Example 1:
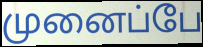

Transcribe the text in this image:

முனைப்பே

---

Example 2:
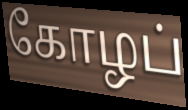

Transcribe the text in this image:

கோழப்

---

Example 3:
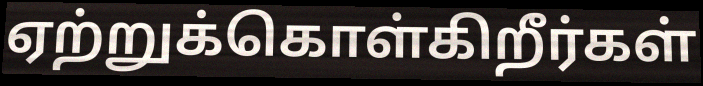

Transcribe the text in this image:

ஏற்றுக்கொள்கிறீர்கள்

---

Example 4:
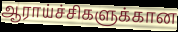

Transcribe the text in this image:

ஆராய்ச்சிகளுக்கான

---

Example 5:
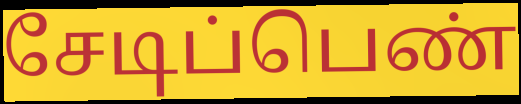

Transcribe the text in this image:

சேடிப்பெண்